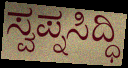
ಸ್ವಪ್ನಸಿದ್ಧಿ